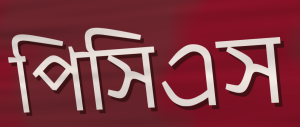
পিসিএস